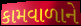
કામવાળાને